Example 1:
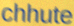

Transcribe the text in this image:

chhute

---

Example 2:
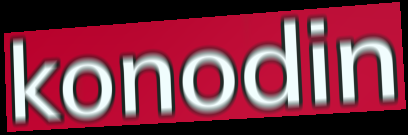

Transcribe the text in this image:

konodin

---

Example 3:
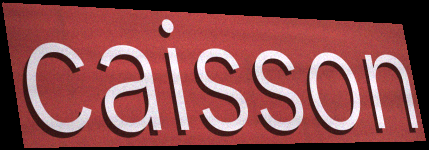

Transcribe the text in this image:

caisson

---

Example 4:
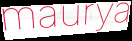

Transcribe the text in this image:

maurya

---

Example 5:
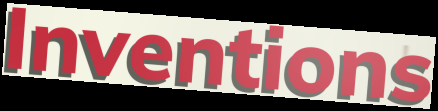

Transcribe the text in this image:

Inventions